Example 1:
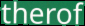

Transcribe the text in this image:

therof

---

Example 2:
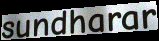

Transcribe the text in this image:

sundharar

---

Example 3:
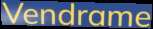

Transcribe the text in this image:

Vendrame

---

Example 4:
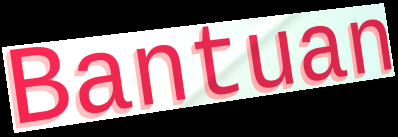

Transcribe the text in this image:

Bantuan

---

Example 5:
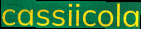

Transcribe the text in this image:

cassiicola